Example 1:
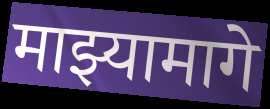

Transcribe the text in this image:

माझ्यामागे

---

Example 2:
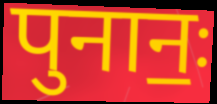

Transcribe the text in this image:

पुना॒नः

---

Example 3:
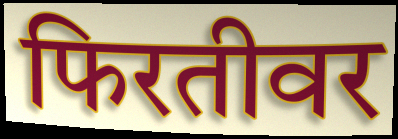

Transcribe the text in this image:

फिरतीवर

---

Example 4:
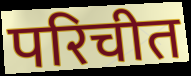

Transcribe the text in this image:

परिचीत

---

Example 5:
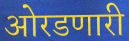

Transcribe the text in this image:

ओरडणारी